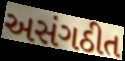
અસંગઠીત